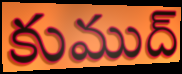
కుముద్